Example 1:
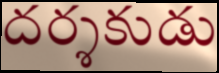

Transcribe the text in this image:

దర్శకుడు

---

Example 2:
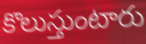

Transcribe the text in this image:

కొలుస్తుంటారు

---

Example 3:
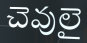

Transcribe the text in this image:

చెవులై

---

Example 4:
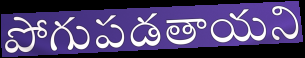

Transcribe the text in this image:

పోగుపడతాయని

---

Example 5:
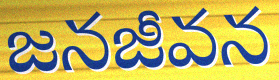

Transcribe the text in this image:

జనజీవన